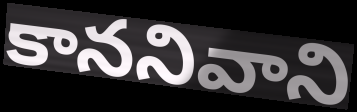
కాననివాని